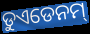
ଡୁଏଡେନମ୍